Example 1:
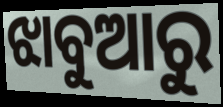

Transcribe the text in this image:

ଝାବୁଆରୁ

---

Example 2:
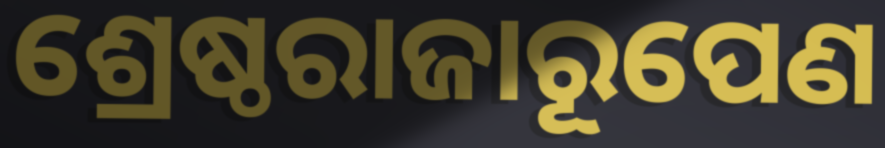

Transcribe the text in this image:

ଶ୍ରେଷ୍ଠରାଜାରୂପେଣ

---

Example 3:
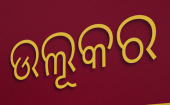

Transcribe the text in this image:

ଉଲୂକର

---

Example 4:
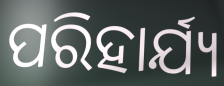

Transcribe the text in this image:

ପରିହାର୍ଯ୍ୟ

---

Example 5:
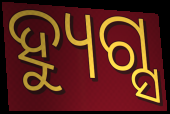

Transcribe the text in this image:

ହ୍ୟୁଗ୍ସ